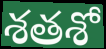
శతశో